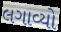
લગાવ્યો